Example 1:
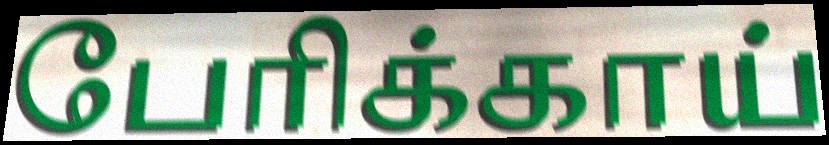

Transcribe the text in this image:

பேரிக்காய்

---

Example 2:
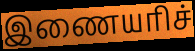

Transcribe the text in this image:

இணையரிச்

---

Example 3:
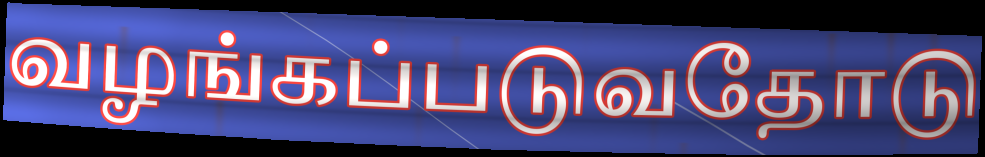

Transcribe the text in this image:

வழங்கப்படுவதோடு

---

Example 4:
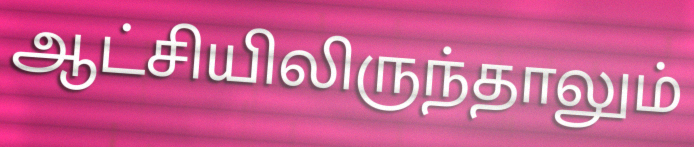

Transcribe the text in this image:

ஆட்சியிலிருந்தாலும்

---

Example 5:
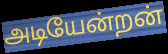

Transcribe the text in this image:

அடியேன்றன்